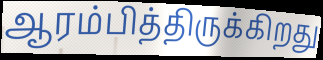
ஆரம்பித்திருக்கிறது